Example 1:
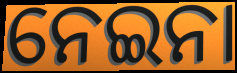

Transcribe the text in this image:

ନେଇନା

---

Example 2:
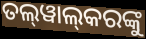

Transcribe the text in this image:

ତଲ୍‌ୱାଲ୍‌କରଙ୍କୁ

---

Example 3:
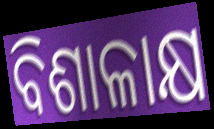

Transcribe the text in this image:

ବିଶାଳାକ୍ଷ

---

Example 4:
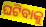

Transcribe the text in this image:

ଘଟିବାକୁ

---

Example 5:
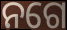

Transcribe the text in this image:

ନଗେ